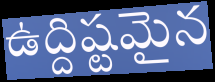
ఉద్దిష్టమైన